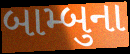
બામ્બુના